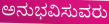
ಅನುಭವಿಸುವರು